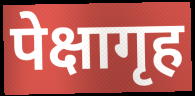
पेक्षागृह